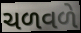
ચળવળે